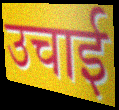
उचाई